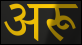
अरू